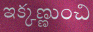
ఇక్కణ్ణుంచి